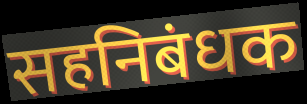
सहनिबंधक